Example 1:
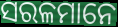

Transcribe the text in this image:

ସରଳମାନେ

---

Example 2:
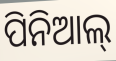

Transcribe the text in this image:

ପିନିଆଲ୍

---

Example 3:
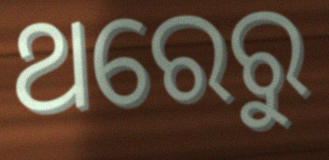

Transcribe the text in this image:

ଥରେରୁ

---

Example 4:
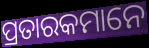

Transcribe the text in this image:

ପ୍ରତାରକମାନେ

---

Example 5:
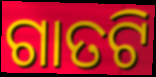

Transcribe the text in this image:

ଗାତଟି